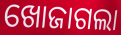
ଖୋଜାଗଲା